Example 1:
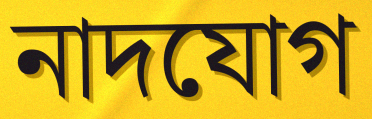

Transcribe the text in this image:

নাদযোগ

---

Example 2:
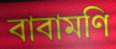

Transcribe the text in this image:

বাবামণি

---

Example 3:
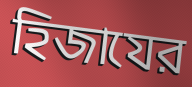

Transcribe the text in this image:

হিজাযের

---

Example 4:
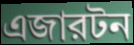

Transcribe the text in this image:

এজারটন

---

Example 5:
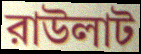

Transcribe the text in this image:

রাউলাট